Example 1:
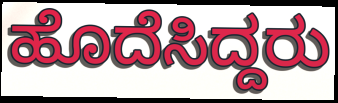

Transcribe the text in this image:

ಹೊದೆಸಿದ್ದರು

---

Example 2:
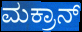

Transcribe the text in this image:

ಮಕ್ರಾನ್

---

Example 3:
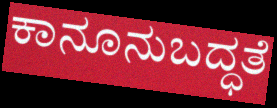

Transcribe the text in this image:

ಕಾನೂನುಬದ್ಧತೆ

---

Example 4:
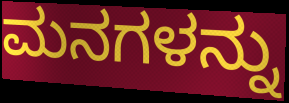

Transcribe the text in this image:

ಮನಗಳನ್ನು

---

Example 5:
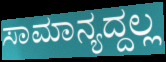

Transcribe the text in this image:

ಸಾಮಾನ್ಯದ್ದಲ್ಲ